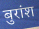
बुरांश